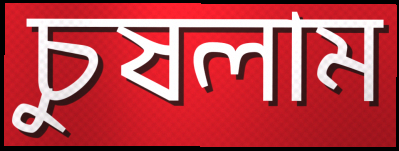
চুষলাম